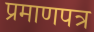
प्रमाणपत्र